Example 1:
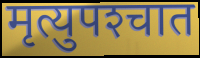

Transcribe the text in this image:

मृत्युपश्चात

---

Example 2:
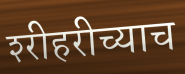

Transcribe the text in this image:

श्रीहरीच्याच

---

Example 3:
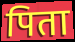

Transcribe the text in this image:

पिता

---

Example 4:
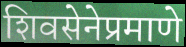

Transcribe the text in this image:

शिवसेनेप्रमाणे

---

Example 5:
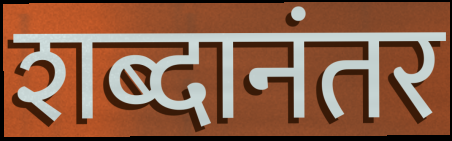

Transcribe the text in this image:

शब्दानंतर